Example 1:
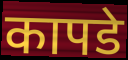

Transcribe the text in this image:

कापडे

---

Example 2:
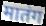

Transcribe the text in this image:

मातंग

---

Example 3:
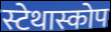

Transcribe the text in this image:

स्टेथास्कोप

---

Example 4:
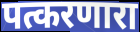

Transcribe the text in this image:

पत्करणारा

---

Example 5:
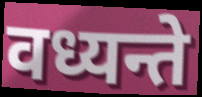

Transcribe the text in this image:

वध्यन्ते